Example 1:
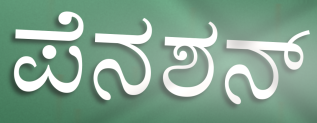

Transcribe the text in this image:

ಪೆನಶನ್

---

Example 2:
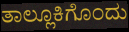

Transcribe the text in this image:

ತಾಲ್ಲೂಕಿಗೊಂದು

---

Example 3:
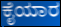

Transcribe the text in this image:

ಕೈಯಾರ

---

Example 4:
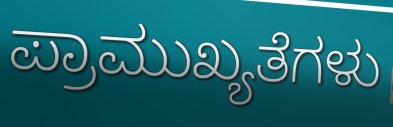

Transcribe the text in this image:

ಪ್ರಾಮುಖ್ಯತೆಗಳು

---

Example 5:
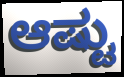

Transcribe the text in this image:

ಆಷ್ಟು